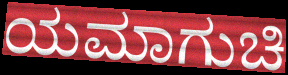
ಯಮಾಗುಚಿ